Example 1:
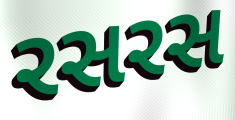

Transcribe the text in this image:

રસરસ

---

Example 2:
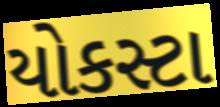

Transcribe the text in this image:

યોકસ્ટા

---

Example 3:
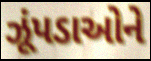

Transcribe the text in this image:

ઝૂંપડાઓને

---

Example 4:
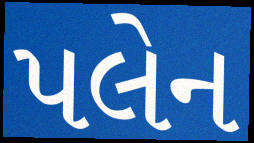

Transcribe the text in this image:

પલેન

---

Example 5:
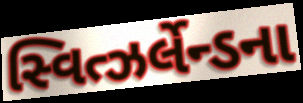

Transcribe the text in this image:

સ્વિત્ઝર્લેન્ડના